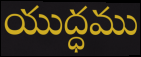
యుద్ధము